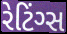
રેટિંગ્સ